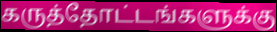
கருத்தோட்டங்களுக்கு